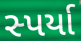
સ્પર્યા